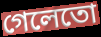
গেলেতো